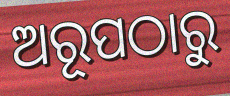
ଅରୂପଠାରୁ